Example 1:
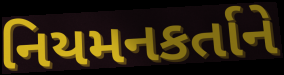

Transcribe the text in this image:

નિયમનકર્તાને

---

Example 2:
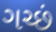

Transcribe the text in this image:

ગચ્છં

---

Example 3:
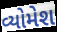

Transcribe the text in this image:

વ્યોમેશ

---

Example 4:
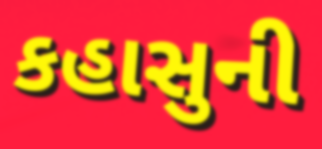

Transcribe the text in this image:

કહાસુની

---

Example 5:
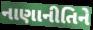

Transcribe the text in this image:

નાણાનીતિને